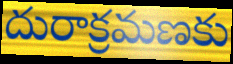
దురాక్రమణకు